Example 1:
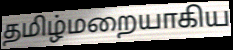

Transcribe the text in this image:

தமிழ்மறையாகிய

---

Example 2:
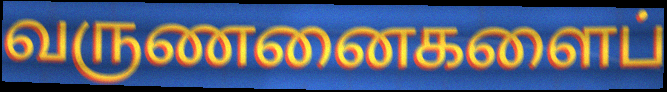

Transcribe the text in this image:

வருணனைகளைப்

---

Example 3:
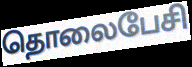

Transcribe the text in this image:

தொலைபேசி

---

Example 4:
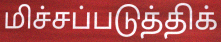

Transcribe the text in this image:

மிச்சப்படுத்திக்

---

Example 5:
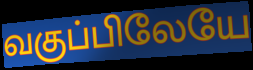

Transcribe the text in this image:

வகுப்பிலேயே